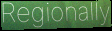
Regionally